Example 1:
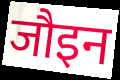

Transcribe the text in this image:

जौइन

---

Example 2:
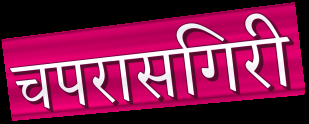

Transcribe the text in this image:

चपरासगिरी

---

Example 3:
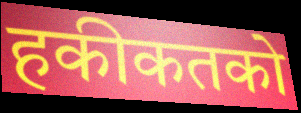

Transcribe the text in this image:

हकीकतको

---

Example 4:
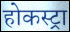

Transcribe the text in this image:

होकस्ट्रा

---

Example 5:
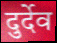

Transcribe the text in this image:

दुर्देव